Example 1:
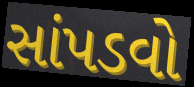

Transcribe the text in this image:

સાંપડવો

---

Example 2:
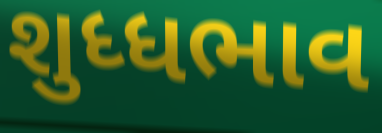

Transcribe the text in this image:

શુધ્ધભાવ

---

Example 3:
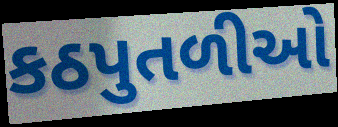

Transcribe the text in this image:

કઠપુતળીઓ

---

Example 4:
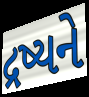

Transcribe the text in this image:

દ્રષ્યને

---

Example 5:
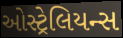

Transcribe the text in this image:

ઓસ્ટ્રેલિયન્સ